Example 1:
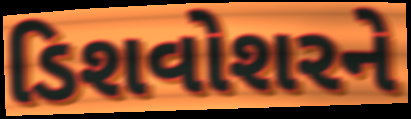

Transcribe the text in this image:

ડિશવોશરને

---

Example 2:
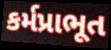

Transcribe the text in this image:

કર્મપ્રાભૂત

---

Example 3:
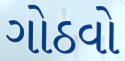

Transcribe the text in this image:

ગોઠવો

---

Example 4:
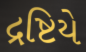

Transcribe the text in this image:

દ્રષ્ટિયે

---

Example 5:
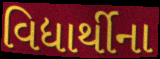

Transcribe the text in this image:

વિદ્યાર્થીના